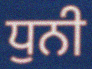
ਧੁਨੀ